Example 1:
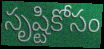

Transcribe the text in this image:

సృష్టికోసం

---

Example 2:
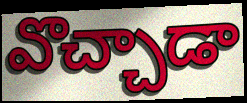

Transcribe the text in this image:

వొచ్చాడా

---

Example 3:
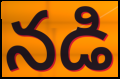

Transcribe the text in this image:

నడి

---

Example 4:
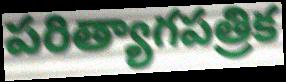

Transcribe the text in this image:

పరిత్యాగపత్రిక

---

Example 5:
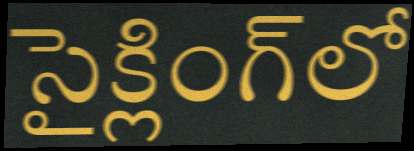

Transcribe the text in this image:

సైక్లింగ్‌లో